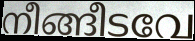
നീങ്ങീടവേ